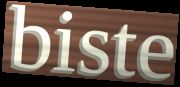
biste